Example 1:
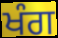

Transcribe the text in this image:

ਖੰਗ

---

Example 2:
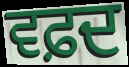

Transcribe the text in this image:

ਵਫ਼ਦ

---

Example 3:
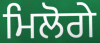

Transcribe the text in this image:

ਮਿਲੋਗੇ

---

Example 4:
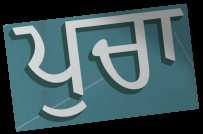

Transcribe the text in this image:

ਪੁਚਾ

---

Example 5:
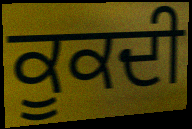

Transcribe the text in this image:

ਕੂਕਦੀ